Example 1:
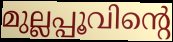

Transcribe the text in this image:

മുല്ലപ്പൂവിന്റെ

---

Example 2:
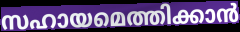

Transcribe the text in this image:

സഹായമെത്തിക്കാൻ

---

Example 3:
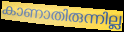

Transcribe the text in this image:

കാണാതിരുന്നില്ല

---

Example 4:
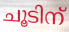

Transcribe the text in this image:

ചൂടിന്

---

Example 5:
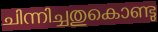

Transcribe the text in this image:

ചിന്നിച്ചതുകൊണ്ടു